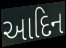
આદિન